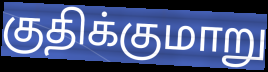
குதிக்குமாறு